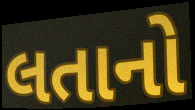
લતાનો